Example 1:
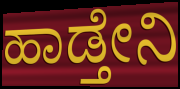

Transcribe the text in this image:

ಹಾಡ್ತೇನಿ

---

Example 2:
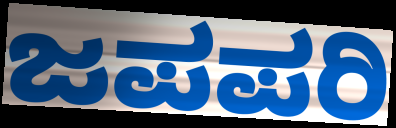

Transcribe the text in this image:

ಜಪಪರಿ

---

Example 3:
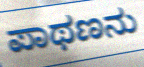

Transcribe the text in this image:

ಪಾಥಣನು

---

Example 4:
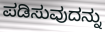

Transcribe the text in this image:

ಪಡಿಸುವುದನ್ನು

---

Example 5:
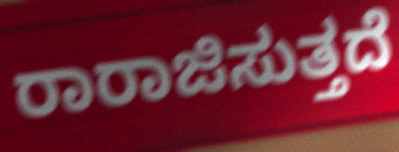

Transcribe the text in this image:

ರಾರಾಜಿಸುತ್ತದೆ